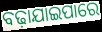
ବଢ଼ାଯାଇପାରେ